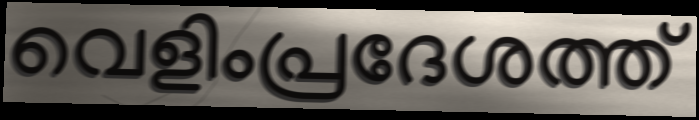
വെളിംപ്രദേശത്ത്